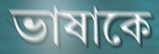
ভাষাকে